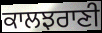
ਕਾਲਝਰਾਣੀ